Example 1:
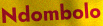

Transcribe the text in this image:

Ndombolo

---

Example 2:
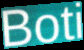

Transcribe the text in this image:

Boti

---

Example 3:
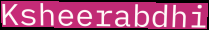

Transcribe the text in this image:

Ksheerabdhi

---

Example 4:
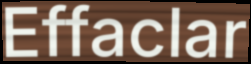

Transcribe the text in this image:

Effaclar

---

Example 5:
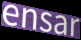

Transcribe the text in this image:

ensar